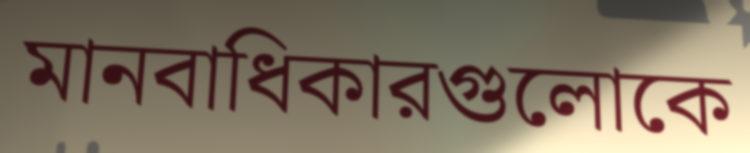
মানবাধিকারগুলোকে